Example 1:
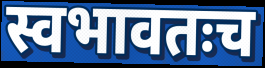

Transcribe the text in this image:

स्वभावतःच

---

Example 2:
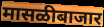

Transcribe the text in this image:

मासळीबाजार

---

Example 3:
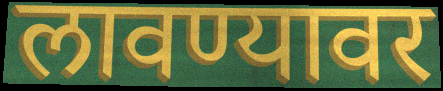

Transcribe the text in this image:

लावण्यावर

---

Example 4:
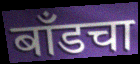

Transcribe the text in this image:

बाँडचा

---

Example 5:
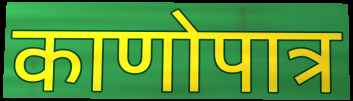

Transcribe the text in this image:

काणोपात्र